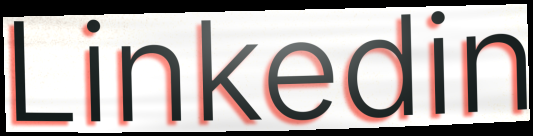
Linkedin